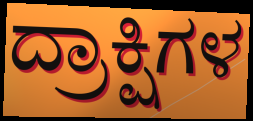
ದ್ರಾಕ್ಷಿಗಳ